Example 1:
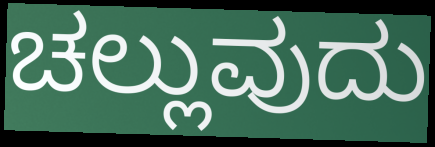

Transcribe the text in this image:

ಚಲ್ಲುವುದು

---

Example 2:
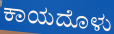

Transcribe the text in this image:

ಕಾಯದೊಳು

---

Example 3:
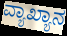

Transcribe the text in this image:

ವ್ಯಾಖ್ಯಾನ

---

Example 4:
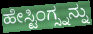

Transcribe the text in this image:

ಹೇಸ್ಟಿಂಗ್ಸ್ನನ್ನು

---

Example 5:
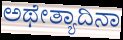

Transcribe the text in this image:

ಅಥೇತ್ಯಾದಿನಾ